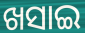
ଖସାଇ